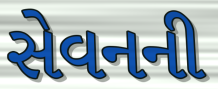
સેવનની